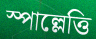
স্পাল্লেত্তি